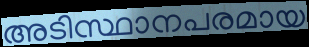
അടിസ്ഥാനപരമായ